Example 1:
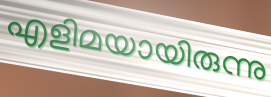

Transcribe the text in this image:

എളിമയായിരുന്നു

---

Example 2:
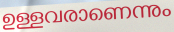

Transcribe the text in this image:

ഉള്ളവരാണെന്നും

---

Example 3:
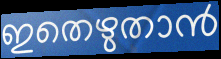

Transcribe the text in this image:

ഇതെഴുതാൻ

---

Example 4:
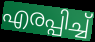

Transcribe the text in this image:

എരപ്പിച്ച്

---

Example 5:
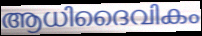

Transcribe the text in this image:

ആധിദൈവികം